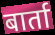
बार्ता